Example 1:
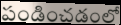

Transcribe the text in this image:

పండించడంలో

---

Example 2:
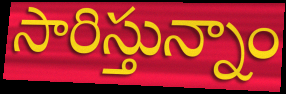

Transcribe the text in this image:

సారిస్తున్నాం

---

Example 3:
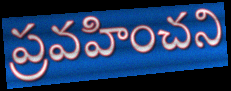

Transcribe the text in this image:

ప్రవహించని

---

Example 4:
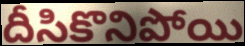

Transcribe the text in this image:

దీసికొనిపోయి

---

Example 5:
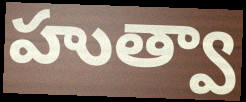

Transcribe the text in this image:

హుత్వా